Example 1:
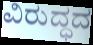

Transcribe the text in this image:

ವಿರುದ್ಧದ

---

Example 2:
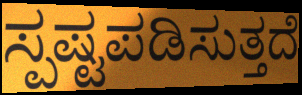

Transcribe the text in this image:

ಸ್ಪಷ್ಟಪಡಿಸುತ್ತದೆ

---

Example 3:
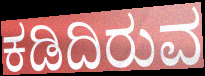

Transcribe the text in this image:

ಕಡಿದಿರುವ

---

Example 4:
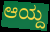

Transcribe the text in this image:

ಆಯ್ದ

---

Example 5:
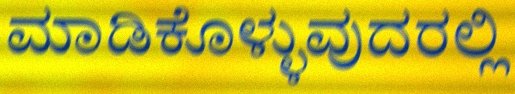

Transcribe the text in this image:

ಮಾಡಿಕೊಳ್ಳುವುದರಲ್ಲಿ